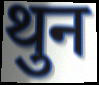
थुन